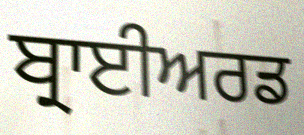
ਬ੍ਰਾਈਅਰਡ